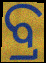
ବ୍ର